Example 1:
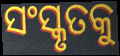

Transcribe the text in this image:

ସଂସ୍କୃତକୁ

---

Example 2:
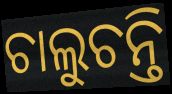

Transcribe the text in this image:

ଚାଲୁଚନ୍ତି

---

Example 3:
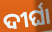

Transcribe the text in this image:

ଦୀର୍ଘା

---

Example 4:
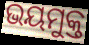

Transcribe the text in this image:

ଭୟମୁକ୍ତ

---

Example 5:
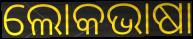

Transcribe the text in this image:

ଲୋକଭାଷା